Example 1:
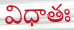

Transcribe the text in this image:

విధాతః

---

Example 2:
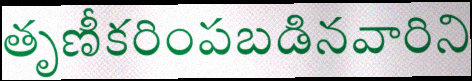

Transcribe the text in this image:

తృణీకరింపబడినవారిని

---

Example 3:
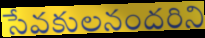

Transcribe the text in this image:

సేవకులనందరిని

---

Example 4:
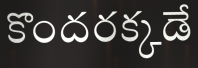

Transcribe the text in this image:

కొందరక్కడే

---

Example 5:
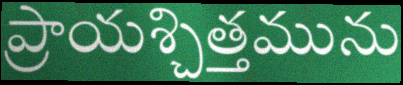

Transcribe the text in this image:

ప్రాయశ్చిత్తమును